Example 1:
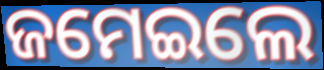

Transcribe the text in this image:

ଜମେଇଲେ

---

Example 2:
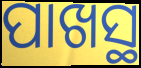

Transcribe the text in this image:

ପାଖସ୍ଥ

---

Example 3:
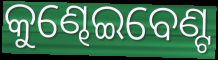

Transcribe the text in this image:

କୁଣ୍ଢେଇବେଣ୍ଟ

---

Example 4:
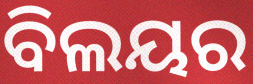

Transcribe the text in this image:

ବିଲୟର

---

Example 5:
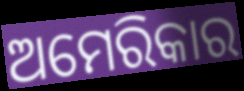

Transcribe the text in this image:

ଅମେରିକାର